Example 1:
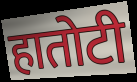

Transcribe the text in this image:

हातोटी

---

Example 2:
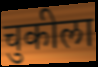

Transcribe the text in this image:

चुकीला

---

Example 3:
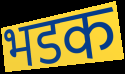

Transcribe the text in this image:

भडक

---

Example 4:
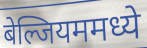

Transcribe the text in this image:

बेल्जियममध्ये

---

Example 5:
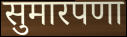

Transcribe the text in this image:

सुमारपणा